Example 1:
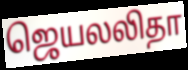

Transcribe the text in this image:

ஜெயலலிதா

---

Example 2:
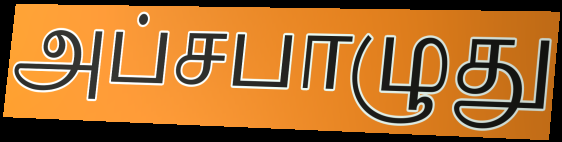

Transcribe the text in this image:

அப்சபாழுது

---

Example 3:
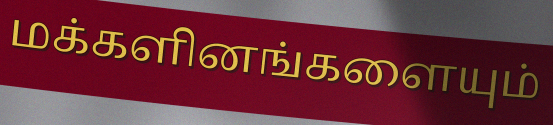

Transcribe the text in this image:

மக்களினங்களையும்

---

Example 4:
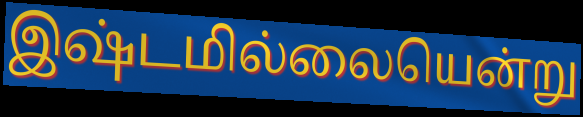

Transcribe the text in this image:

இஷ்டமில்லையென்று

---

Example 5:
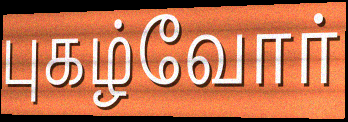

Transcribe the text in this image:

புகழ்வோர்